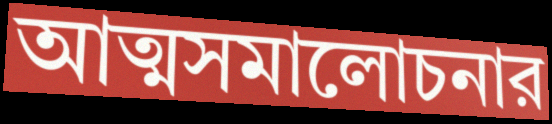
আত্মসমালোচনার